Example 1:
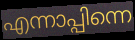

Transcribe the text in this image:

എന്നാപ്പിന്നെ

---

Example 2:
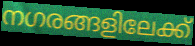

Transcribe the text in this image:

നഗരങ്ങളിലേക്ക്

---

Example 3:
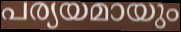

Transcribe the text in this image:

പര്യയമായും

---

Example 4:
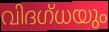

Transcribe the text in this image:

വിദഗ്ധയും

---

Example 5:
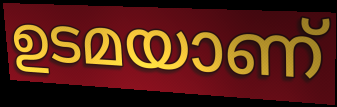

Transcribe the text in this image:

ഉടമയാണ്